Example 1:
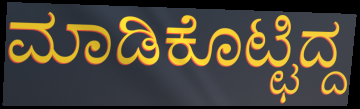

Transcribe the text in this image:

ಮಾಡಿಕೊಟ್ಟಿದ್ದ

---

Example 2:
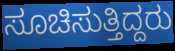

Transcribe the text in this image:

ಸೂಚಿಸುತ್ತಿದ್ದರು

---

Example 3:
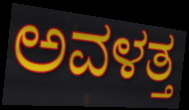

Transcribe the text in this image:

ಅವಳತ್ತ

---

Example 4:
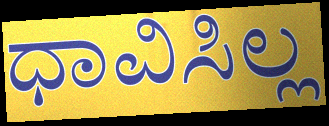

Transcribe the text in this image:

ಧಾವಿಸಿಲ್ಲ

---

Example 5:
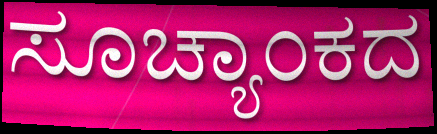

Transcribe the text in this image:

ಸೂಚ್ಯಾಂಕದ